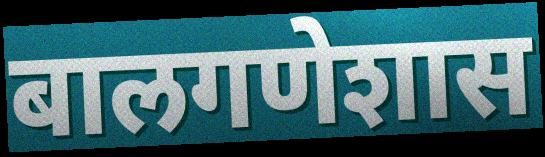
बालगणेशास